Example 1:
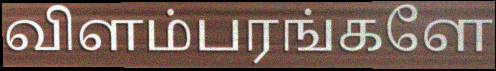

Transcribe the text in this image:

விளம்பரங்களே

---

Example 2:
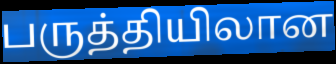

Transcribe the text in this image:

பருத்தியிலான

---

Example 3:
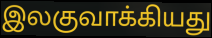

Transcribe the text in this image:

இலகுவாக்கியது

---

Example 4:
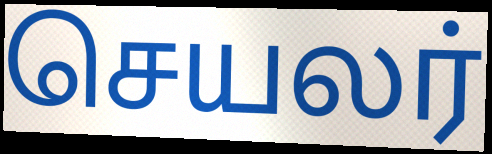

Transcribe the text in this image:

செயலர்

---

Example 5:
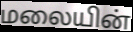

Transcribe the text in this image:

மலையின்